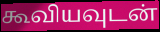
கூவியவுடன்